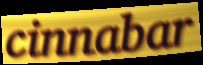
cinnabar